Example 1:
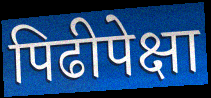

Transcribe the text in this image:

पिढीपेक्षा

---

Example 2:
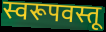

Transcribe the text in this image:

स्वरूपवस्तू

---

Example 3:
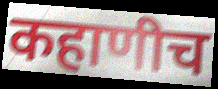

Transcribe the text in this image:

कहाणीच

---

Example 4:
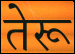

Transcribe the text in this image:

तेरू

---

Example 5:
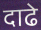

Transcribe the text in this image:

दाढे